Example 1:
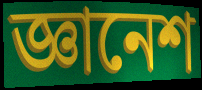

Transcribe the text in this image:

জ্ঞানেশ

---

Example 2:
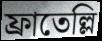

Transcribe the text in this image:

ফ্রাতেল্লি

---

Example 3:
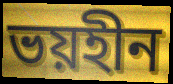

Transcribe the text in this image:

ভয়হীন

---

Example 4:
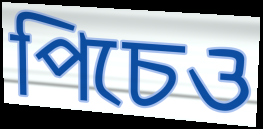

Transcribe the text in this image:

পিচেও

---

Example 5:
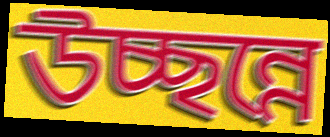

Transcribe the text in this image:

উচ্ছন্নে